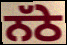
ਨੱਠੇ